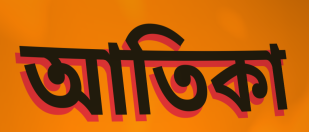
আতিকা